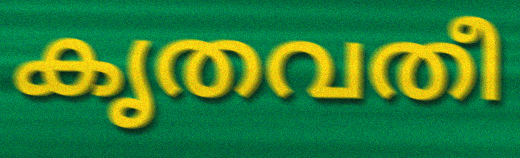
കൃതവതീ